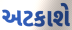
અટકાશે